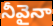
నీవైనా